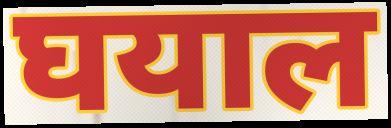
घयाल